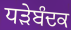
ਧੜੇਬੰਦਕ